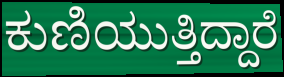
ಕುಣಿಯುತ್ತಿದ್ದಾರೆ